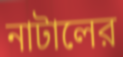
নাটালের